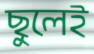
ছুলেই